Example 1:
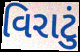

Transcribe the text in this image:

વિરાટું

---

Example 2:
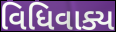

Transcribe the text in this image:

વિધિવાક્ય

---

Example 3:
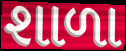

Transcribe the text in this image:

શાળા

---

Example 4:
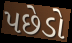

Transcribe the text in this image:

પછેડો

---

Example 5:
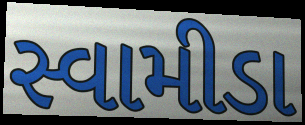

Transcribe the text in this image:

સ્વામીડા